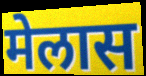
मेलास